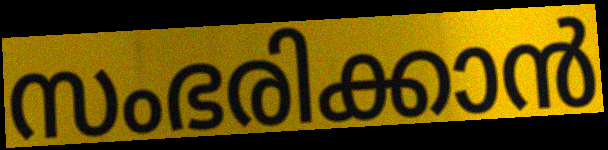
സംഭരിക്കാൻ